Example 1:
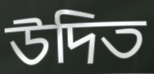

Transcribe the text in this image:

উদিত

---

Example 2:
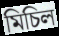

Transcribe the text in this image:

মিচিল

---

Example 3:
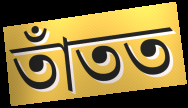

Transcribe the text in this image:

তাঁতত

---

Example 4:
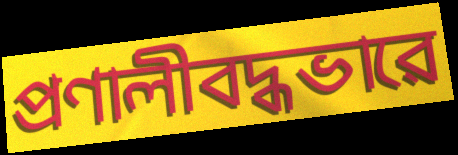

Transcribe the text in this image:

প্ৰণালীবদ্ধভাৱে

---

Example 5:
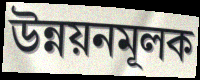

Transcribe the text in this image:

উন্নয়নমূলক